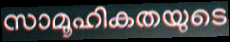
സാമൂഹികതയുടെ